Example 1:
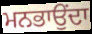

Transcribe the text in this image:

ਮਨਭਾਉਂਦਾ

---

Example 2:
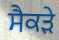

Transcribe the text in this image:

ਸੈਕੜੇ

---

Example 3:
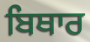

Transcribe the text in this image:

ਬਿਥਾਰ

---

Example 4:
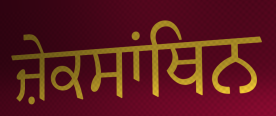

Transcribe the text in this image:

ਜ਼ੇਕਸਾਂਥਿਨ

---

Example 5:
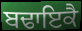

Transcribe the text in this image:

ਬਢਾਇਕੈ